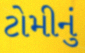
ટોમીનું